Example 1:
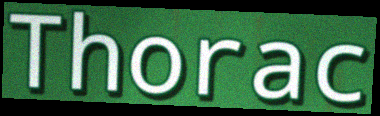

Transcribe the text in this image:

Thorac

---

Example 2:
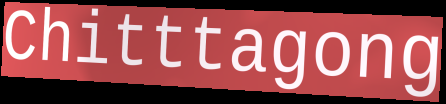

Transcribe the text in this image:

Chitttagong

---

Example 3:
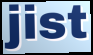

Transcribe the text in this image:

jist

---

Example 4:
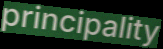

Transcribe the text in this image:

principality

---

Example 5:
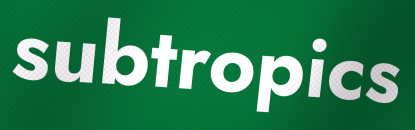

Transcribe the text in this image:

subtropics